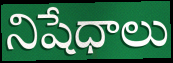
నిషేధాలు